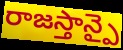
రాజస్తాన్పై